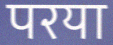
परया